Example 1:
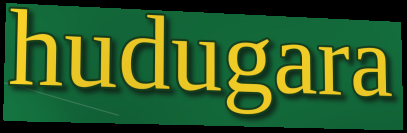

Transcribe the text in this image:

hudugara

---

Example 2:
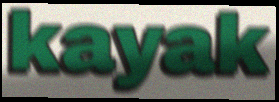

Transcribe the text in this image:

kayak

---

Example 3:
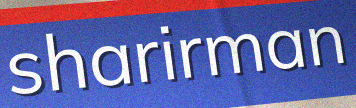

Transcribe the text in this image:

sharirman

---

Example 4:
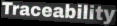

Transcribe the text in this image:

Traceability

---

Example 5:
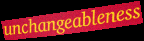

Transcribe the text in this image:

unchangeableness